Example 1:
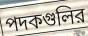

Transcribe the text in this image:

পদকগুলির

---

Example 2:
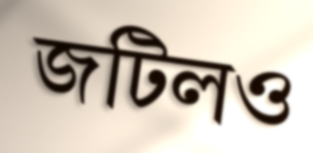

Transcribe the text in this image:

জটিলও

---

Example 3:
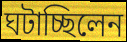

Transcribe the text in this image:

ঘটাচ্ছিলেন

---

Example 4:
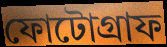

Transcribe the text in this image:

ফোটোগ্রাফ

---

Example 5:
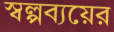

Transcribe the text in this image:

স্বল্পব্যয়ের